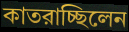
কাতরাচ্ছিলেন